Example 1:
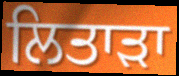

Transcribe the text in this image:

ਲਿਤਾੜਾ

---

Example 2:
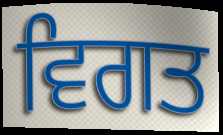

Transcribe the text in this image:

ਵਿਗਤ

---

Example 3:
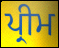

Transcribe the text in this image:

ਪ੍ਰੀਮ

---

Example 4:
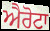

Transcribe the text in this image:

ਐਰੋਟਾ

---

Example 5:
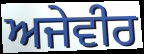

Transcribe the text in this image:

ਅਜੇਵੀਰ